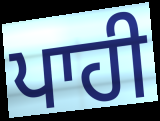
ਪਾਹੀ